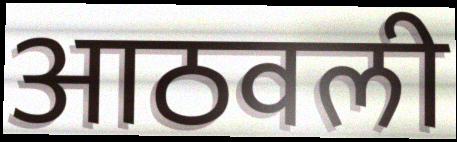
आठवली